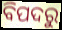
ବିପଦରୁ